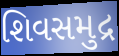
શિવસમુદ્ર